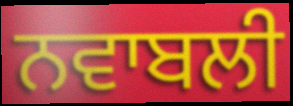
ਨਵਾਬਲੀ